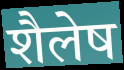
शैलेष